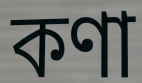
কণা